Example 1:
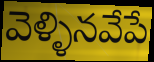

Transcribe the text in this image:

వెళ్ళినవేపే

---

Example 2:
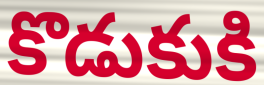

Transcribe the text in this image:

కొడుకుకి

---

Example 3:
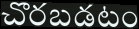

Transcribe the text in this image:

చొరబడటం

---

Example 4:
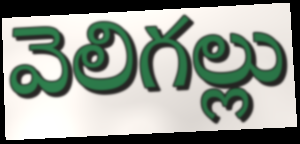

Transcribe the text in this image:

వెలిగల్లు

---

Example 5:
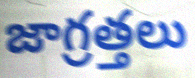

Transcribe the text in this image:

జాగ్రత్తలు